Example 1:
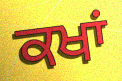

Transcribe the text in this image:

ਕਖਾਂ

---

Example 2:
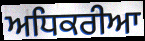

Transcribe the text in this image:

ਅਧਿਕਰੀਆ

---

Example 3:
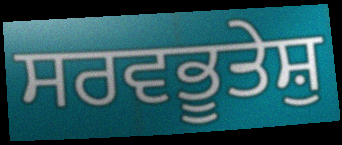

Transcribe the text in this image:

ਸਰਵਭੂਤੇਸ਼ੁ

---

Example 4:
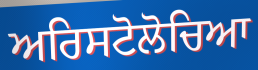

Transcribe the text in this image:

ਅਰਿਸਟੋਲੋਚਿਆ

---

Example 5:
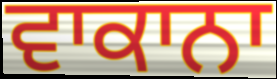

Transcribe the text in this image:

ਵਾਕਾਨਾ